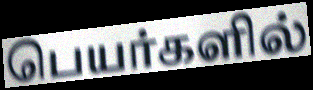
பெயர்களில்